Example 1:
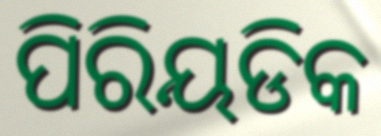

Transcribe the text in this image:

ପିରିୟଡିକ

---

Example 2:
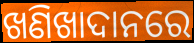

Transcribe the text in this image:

ଖଣିଖାଦାନରେ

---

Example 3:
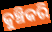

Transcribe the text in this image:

କୁଞ୍ଚିକରି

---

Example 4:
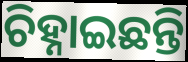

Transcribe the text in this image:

ଚିହ୍ନାଇଛନ୍ତି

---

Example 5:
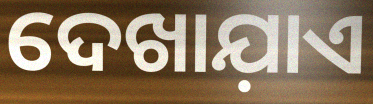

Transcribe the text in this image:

ଦେଖାଯ଼ାଏ